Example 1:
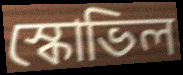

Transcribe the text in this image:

স্কোভিল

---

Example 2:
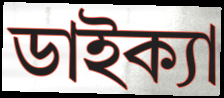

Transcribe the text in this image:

ডাইক্যা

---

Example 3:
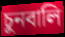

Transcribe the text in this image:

চুনবালি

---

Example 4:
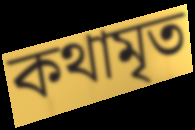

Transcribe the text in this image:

কথামৃত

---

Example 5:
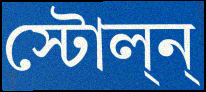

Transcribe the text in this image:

স্টোল্ন্